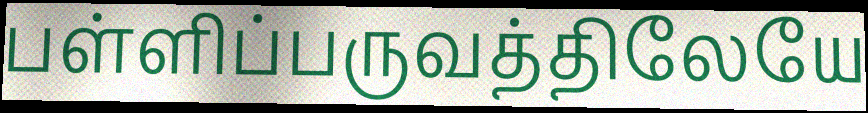
பள்ளிப்பருவத்திலேயே